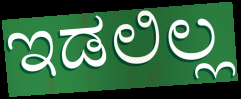
ಇಡಲಿಲ್ಲ